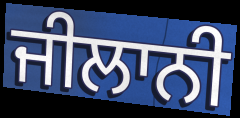
ਜੀਲਾਨੀ